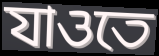
যাওতে